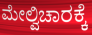
ಮೇಲ್ವಿಚಾರಕ್ಕೆ